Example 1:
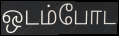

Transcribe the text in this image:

ஒடம்போட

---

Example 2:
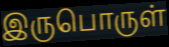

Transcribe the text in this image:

இருபொருள்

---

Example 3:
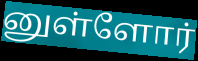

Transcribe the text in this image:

னுள்ளோர்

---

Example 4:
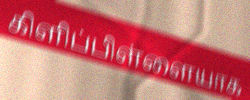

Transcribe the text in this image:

கிளிப்பிள்ளையாக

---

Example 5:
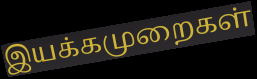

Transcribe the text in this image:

இயக்கமுறைகள்